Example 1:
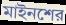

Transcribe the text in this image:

মাইনশের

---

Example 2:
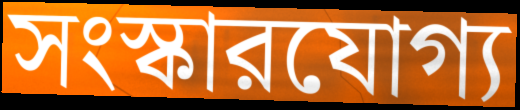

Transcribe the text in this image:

সংস্কারযোগ্য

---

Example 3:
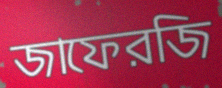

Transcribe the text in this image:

জাফেরজি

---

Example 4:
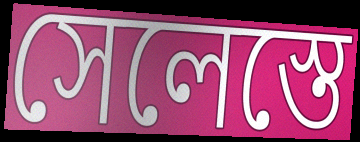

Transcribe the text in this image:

সেলেস্তে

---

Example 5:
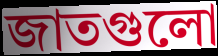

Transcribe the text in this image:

জাতগুলো